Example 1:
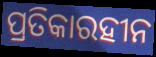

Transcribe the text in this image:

ପ୍ରତିକାରହୀନ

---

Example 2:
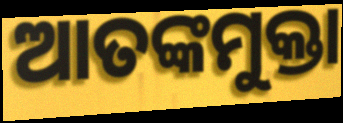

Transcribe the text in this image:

ଆତଙ୍କମୁକ୍ତା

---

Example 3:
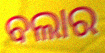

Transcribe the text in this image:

ବଲାର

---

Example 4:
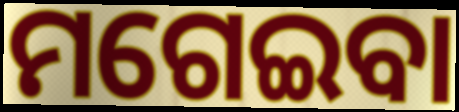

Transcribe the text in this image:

ମଗେଇବା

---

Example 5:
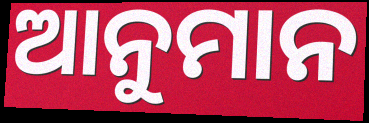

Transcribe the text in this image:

ଆନୁମାନ